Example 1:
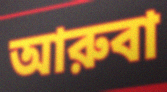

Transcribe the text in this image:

আরুবা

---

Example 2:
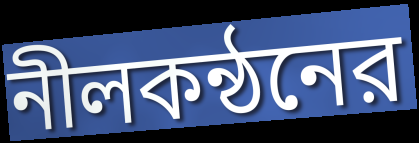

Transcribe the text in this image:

নীলকন্ঠনের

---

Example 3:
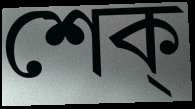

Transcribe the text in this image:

শেক্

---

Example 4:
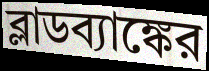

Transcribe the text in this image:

ব্লাডব্যাঙ্কের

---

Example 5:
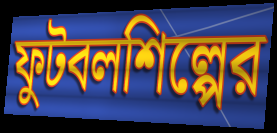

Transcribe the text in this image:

ফুটবলশিল্পের